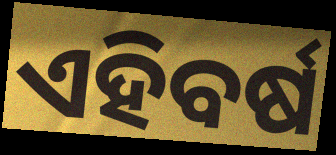
ଏହିବର୍ଷ